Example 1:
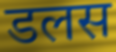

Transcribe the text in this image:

डलस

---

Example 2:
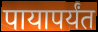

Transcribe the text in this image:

पायापर्यंत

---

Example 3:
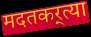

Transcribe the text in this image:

मदतकर्त्या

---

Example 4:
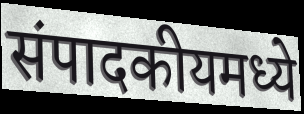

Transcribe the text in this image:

संपादकीयमध्ये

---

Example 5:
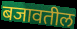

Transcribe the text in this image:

बजावतील